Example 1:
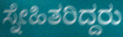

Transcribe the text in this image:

ಸ್ನೇಹಿತರಿದ್ದರು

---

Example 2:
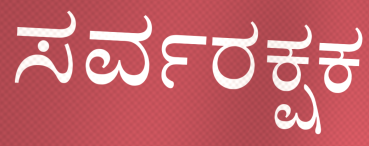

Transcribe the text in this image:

ಸರ್ವರಕ್ಷಕ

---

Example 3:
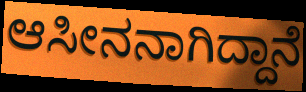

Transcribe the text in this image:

ಆಸೀನನಾಗಿದ್ದಾನೆ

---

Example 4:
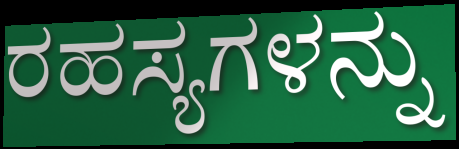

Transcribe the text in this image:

ರಹಸ್ಯಗಳನ್ನು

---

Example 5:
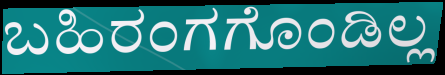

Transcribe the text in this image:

ಬಹಿರಂಗಗೊಂಡಿಲ್ಲ